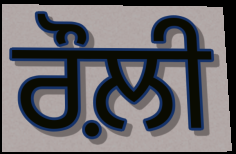
ਰੌਲ਼ੀ